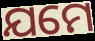
ଯମେ